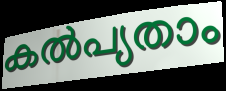
കൽപ്യതാം